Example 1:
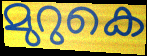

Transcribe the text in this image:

മുറുകെ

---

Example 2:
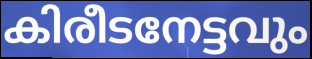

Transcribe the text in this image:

കിരീടനേട്ടവും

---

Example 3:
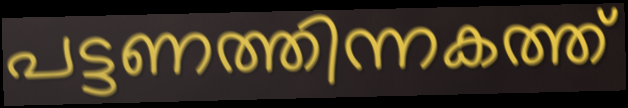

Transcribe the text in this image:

പട്ടണത്തിന്നകത്ത്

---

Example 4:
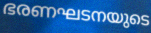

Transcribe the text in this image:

ഭരണഘടനയുടെ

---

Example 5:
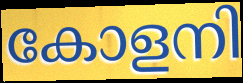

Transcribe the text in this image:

കോളനി